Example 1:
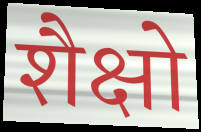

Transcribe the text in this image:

शैक्षो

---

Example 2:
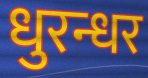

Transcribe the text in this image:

धुरन्धर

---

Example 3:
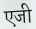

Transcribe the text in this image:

एजी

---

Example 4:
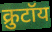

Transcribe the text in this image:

क्रुटॉय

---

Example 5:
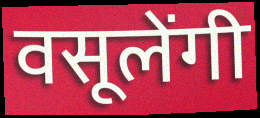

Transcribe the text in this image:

वसूलेंगी